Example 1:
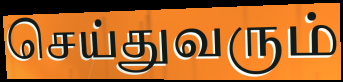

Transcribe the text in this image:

செய்துவரும்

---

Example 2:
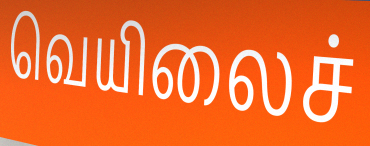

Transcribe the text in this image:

வெயிலைச்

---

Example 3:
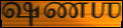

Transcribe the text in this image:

ஷணஶ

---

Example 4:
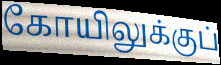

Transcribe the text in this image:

கோயிலுக்குப்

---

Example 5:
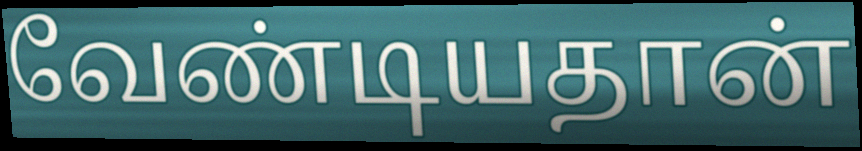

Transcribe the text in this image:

வேண்டியதான்